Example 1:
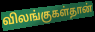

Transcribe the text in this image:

விலங்குகள்தான்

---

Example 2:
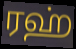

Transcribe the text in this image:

ரஹ்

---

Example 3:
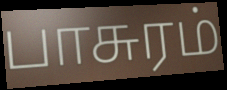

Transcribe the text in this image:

பாசுரம்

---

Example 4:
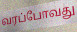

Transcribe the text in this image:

வரப்போவது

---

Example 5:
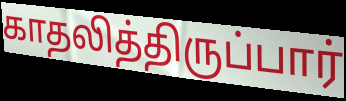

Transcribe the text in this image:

காதலித்திருப்பார்